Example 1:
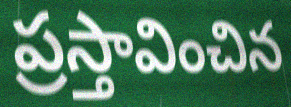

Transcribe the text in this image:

ప్రస్తావించిన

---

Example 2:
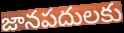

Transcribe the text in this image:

జానపదులకు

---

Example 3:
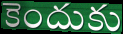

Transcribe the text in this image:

కెందుకు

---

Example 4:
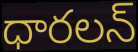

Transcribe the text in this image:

ధారలన్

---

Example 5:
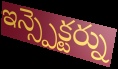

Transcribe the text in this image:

ఇన్స్పెక్టర్ను